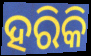
ହରିକି